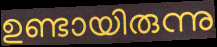
ഉണ്ടായിരുന്നു